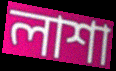
লাশা